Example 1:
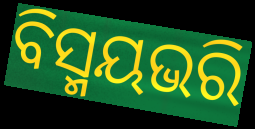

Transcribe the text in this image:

ବିସ୍ମୟଭରି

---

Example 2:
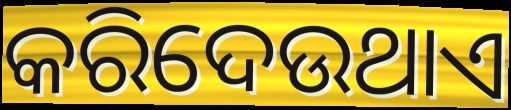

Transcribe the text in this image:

କରିଦେଉଥାଏ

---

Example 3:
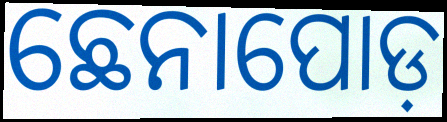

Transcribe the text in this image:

ଛେନାପୋଡ଼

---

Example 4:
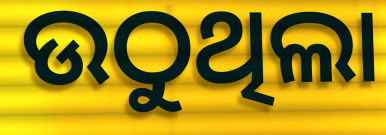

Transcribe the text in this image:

ଉଠୁଥିଲା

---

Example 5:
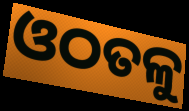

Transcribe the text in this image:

ଓଠତଳୁ